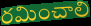
రమించాలి